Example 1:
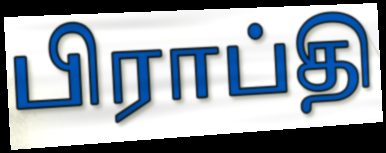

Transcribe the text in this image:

பிராப்தி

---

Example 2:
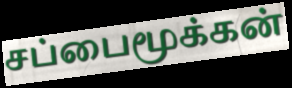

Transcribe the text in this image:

சப்பைமூக்கன்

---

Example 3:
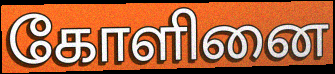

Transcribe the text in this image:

கோளினை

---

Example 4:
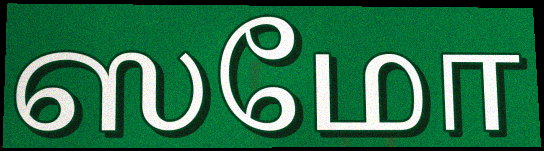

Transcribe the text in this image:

ஸமோ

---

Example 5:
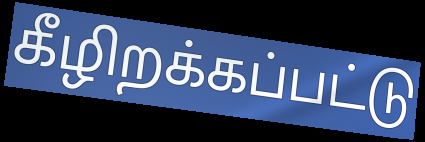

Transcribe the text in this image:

கீழிறக்கப்பட்டு